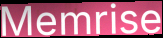
Memrise